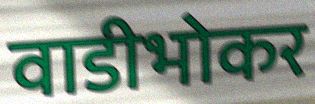
वाडीभोकर